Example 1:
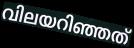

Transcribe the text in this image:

വിലയറിഞ്ഞത്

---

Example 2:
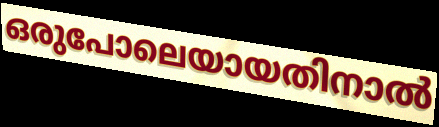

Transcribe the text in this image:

ഒരുപോലെയായതിനാൽ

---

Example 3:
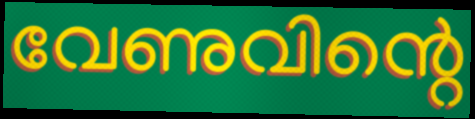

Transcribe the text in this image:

വേണുവിന്റെ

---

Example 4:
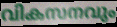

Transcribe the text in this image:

വികസനവും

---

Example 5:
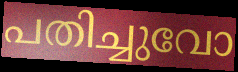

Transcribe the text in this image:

പതിച്ചുവോ